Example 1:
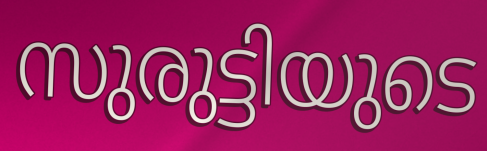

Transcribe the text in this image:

സുരുട്ടിയുടെ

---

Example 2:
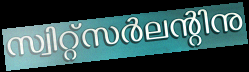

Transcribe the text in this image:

സ്വിറ്റ്സർലന്റിനു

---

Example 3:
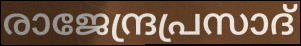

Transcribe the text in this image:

രാജേന്ദ്രപ്രസാദ്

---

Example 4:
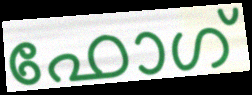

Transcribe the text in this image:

ഫോഗ്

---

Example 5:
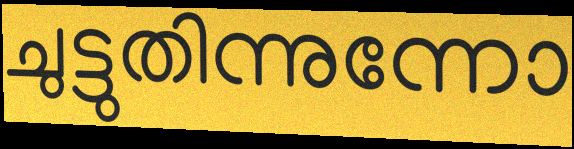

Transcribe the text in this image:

ചുട്ടുതിന്നുന്നോ